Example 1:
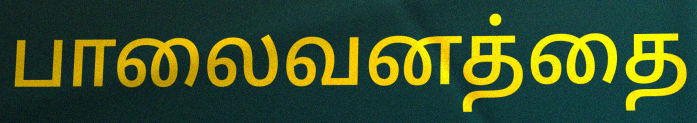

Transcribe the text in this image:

பாலைவனத்தை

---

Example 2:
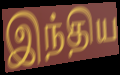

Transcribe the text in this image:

இந்திய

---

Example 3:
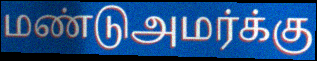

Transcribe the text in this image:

மண்டுஅமர்க்கு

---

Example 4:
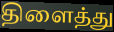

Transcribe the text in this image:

திளைத்து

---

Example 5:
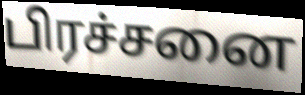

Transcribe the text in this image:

பிரச்சனை